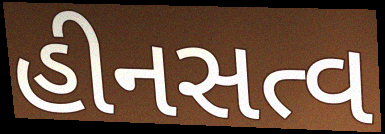
હીનસત્વ